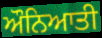
ਔਨਿਆਤੀ